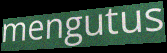
mengutus